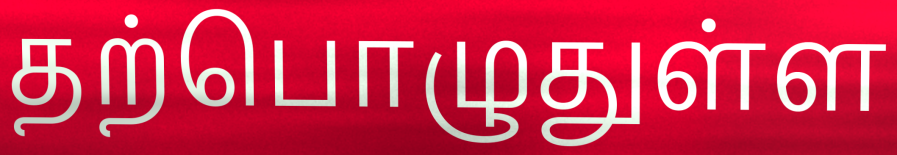
தற்பொழுதுள்ள